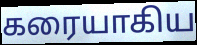
கரையாகிய